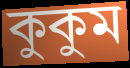
কুকুম